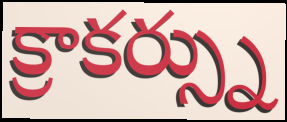
క్రాకర్స్ను